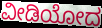
ವೀಡಿಯೋದ